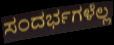
ಸಂದರ್ಭಗಳೆಲ್ಲ